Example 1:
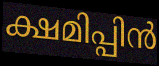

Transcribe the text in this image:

ക്ഷമിപ്പിൻ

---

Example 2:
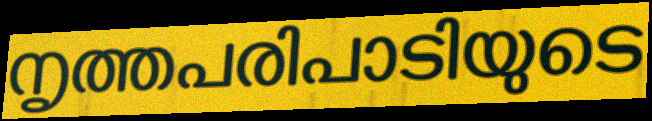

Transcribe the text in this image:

നൃത്തപരിപാടിയുടെ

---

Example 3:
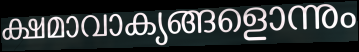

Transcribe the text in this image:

ക്ഷമാവാക്യങ്ങളൊന്നും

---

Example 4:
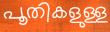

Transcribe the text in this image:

പൂതികളുള്ള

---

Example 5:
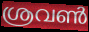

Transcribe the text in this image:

ശ്രവൺ